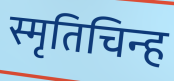
स्मृतिचिन्ह